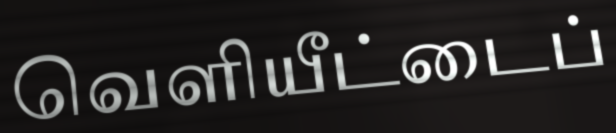
வெளியீட்டைப்